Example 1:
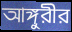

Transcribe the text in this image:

আঙ্গুরীর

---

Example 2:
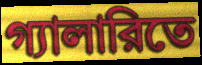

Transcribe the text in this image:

গ্যালারিতে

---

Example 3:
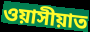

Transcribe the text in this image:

ওয়াসীয়াত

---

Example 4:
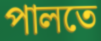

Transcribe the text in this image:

পালতে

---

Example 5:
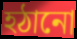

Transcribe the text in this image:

হঠানো